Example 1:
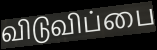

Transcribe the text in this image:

விடுவிப்பை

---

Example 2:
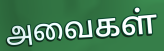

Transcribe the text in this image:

அவைகள்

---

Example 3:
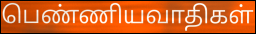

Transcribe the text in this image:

பெண்ணியவாதிகள்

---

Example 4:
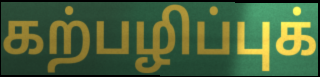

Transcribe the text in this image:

கற்பழிப்புக்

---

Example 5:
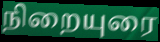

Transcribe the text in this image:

நிறையுரை